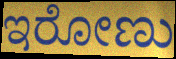
ಇರೋಣು